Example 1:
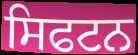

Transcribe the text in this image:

ਸਿਫਟਨ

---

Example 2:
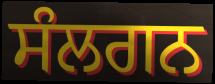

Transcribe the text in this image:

ਸੰਲਗਨ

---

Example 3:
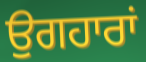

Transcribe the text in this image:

ਉਗਹਾਰਾਂ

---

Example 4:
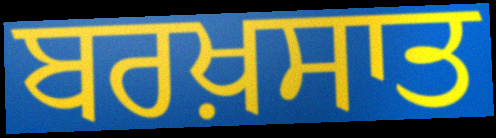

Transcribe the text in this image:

ਬਰਖ਼ਸਾਤ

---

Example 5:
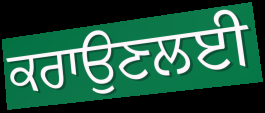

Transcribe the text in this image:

ਕਰਾਉਣਲਈ